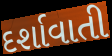
દર્શાવાતી